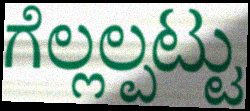
ಗೆಲ್ಲಲ್ಪಟ್ಟು